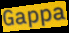
Gappa